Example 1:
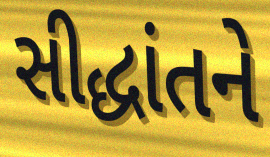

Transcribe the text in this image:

સીદ્ધાંતને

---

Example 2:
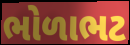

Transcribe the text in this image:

ભોળાભટ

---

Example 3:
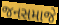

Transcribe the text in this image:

જનસમાજે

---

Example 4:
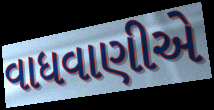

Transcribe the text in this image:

વાધવાણીએ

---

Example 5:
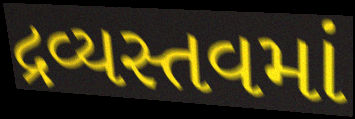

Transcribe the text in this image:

દ્રવ્યસ્તવમાં